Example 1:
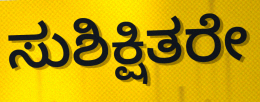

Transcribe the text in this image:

ಸುಶಿಕ್ಷಿತರೇ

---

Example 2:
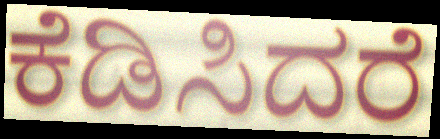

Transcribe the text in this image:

ಕೆಡಿಸಿದರೆ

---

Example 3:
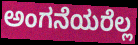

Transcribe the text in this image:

ಅಂಗನೆಯರೆಲ್ಲ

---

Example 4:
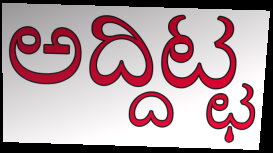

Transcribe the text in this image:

ಅದ್ದಿಟ್ಟ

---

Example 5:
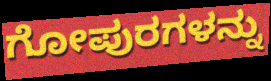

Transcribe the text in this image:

ಗೋಪುರಗಳನ್ನು